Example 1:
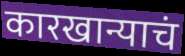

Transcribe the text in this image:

कारखान्याचं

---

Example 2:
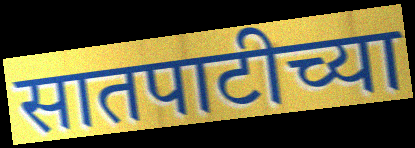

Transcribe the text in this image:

सातपाटीच्या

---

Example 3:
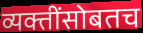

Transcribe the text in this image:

व्यक्तींसोबतच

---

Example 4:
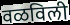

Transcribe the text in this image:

वळविली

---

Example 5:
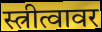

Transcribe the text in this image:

स्त्रीत्वावर